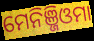
ମେନିଞ୍ଜିଓମା